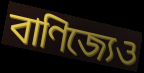
বাণিজ্যেও